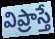
విప్రాస్తే